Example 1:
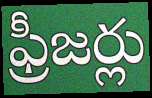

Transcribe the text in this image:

ఫ్రీజర్లు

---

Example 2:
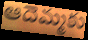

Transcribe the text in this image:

ఆదెమ్మకు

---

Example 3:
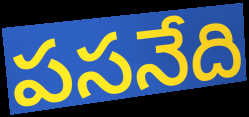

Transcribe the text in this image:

పసనేది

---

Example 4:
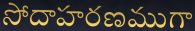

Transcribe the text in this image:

సోదాహరణముగా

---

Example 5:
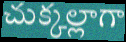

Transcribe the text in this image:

చుక్కల్లాగా